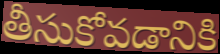
తీసుకోవడానికి